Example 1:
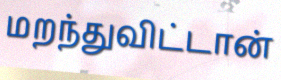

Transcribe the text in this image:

மறந்துவிட்டான்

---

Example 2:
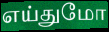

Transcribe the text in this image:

எய்துமோ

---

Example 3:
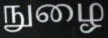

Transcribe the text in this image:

நுழை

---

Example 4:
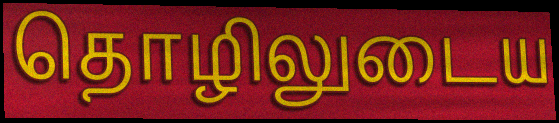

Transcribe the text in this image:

தொழிலுடைய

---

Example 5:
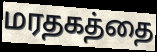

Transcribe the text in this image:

மரதகத்தை